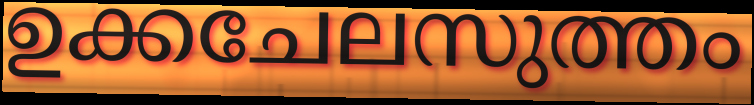
ഉക്കചേലസുത്തം